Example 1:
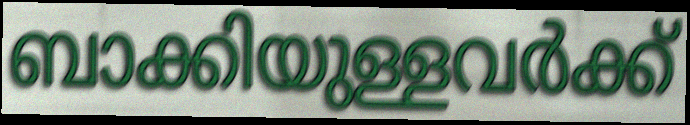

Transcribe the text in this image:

ബാക്കിയുള്ളവർക്ക്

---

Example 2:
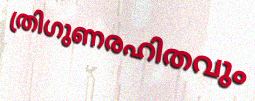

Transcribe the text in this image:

ത്രിഗുണരഹിതവും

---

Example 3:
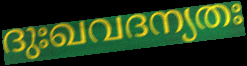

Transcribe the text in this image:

ദുഃഖവദന്യതഃ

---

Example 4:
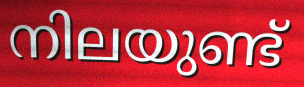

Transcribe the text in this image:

നിലയുണ്ട്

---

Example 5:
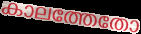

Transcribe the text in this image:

കാലത്തേതോ